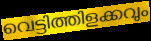
വെട്ടിത്തിളക്കവും